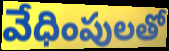
వేధింపులతో